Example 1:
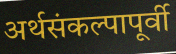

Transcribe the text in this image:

अर्थसंकल्पापूर्वी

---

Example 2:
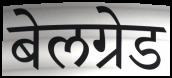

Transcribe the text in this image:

बेलग्रेड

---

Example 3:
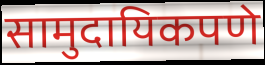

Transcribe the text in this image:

सामुदायिकपणे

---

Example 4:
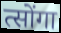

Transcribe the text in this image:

त्सोंगा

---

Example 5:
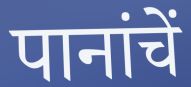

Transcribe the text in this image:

पानांचें